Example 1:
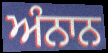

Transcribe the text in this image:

ਅੰਨਾਨ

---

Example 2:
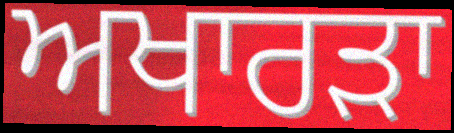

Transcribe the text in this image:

ਅਖਾਰੜਾ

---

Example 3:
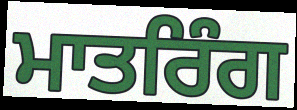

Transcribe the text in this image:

ਮਾਤਰਿੰਗ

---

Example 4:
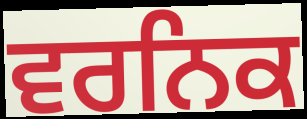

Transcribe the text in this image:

ਵਰਨਿਕ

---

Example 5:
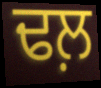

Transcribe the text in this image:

ਢਲ਼